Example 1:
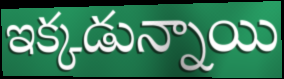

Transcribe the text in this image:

ఇక్కడున్నాయి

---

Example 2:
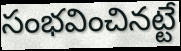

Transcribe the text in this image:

సంభవించినట్టే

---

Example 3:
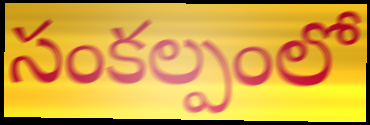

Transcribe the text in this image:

సంకల్పంలో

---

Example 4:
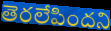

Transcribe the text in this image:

తెరలేపిందని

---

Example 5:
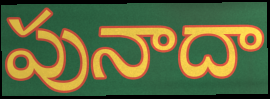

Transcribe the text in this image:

పునాదా